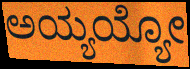
ಅಯ್ಯಯ್ಯೋ